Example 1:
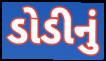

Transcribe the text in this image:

ડોડીનું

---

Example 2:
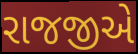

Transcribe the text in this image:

રાજજીએ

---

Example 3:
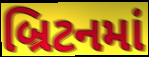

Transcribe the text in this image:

બ્રિટનમાં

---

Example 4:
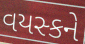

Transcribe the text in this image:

વયસ્કને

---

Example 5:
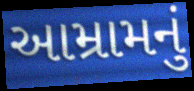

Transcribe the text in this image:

આમ્રામનું